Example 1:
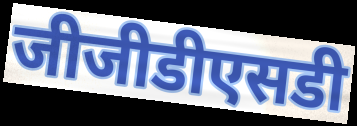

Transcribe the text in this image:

जीजीडीएसडी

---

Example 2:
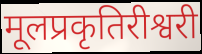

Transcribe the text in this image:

मूलप्रकृतिरीश्वरी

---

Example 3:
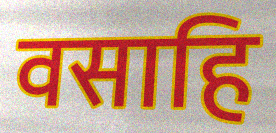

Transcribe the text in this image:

वसाहि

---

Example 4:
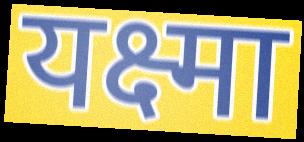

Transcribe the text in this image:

यक्ष्मा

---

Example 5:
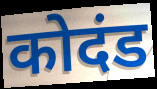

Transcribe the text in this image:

कोदंड